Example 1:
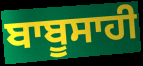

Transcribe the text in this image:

ਬਾਬੂਸਾਹੀ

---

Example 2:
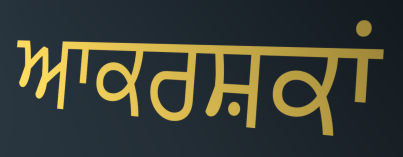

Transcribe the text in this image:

ਆਕਰਸ਼ਕਾਂ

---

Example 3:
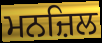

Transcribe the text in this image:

ਮਨਜ਼ਿਲ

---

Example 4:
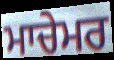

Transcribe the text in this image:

ਮਾਚੇਮਰ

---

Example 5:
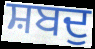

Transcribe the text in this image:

ਸ਼ਬਦੁ